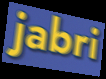
jabri